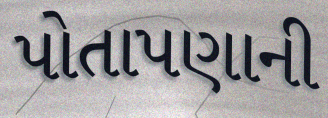
પોતાપણાની